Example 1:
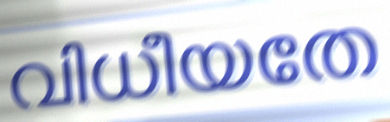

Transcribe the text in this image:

വിധീയതേ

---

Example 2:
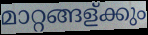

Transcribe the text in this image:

മാറ്റങ്ങള്ക്കും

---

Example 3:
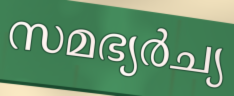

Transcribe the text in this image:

സമഭ്യർച്യ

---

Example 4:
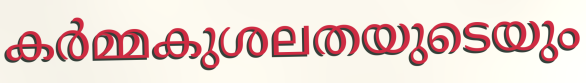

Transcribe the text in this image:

കർമ്മകുശലതയുടെയും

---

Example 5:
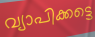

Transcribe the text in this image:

വ്യാപിക്കട്ടെ